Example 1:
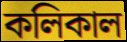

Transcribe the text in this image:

কলিকাল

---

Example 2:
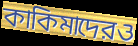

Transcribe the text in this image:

কাকিমাদেরও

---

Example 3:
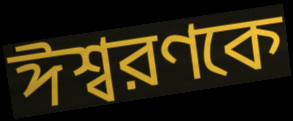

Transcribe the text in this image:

ঈশ্বরণকে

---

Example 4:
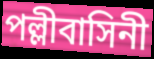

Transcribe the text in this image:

পল্লীবাসিনী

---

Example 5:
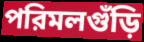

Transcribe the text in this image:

পরিমলগুঁড়ি